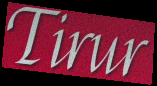
Tirur